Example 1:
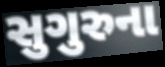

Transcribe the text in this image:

સુગુરુના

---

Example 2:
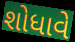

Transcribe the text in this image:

શોધાવે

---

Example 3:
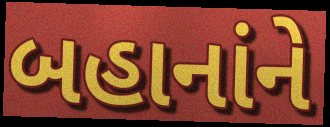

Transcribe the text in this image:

બહાનાંને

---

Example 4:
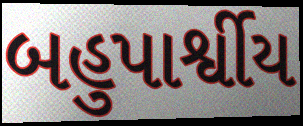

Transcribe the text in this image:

બહુપાર્શ્વીય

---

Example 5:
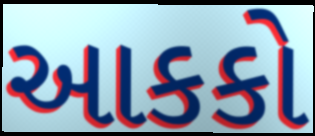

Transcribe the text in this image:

આકકો